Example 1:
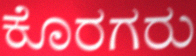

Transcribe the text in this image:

ಕೊರಗರು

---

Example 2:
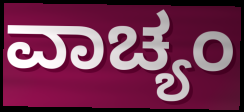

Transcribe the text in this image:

ವಾಚ್ಯಂ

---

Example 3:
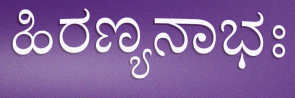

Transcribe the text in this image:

ಹಿರಣ್ಯನಾಭಃ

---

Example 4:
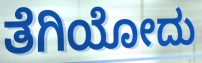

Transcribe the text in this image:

ತೆಗಿಯೋದು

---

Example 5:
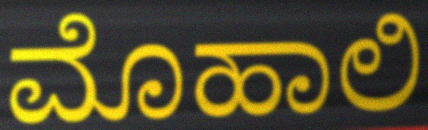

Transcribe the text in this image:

ಮೊಹಾಲಿ